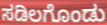
ಸಡಿಲಗೊಂಡು